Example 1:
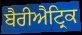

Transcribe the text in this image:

ਬੈਰੀਐਟ੍ਰਿਕ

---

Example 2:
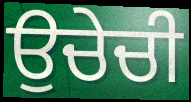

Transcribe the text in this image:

ਉਚੇਚੀ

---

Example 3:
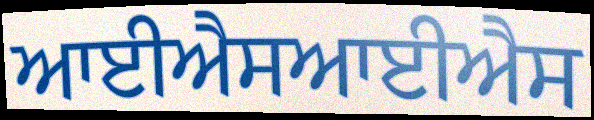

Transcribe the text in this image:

ਆਈਐਸਆਈਐਸ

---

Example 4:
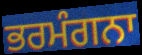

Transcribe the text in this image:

ਭਰਮੰਗਨਾ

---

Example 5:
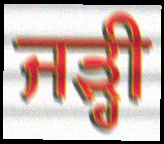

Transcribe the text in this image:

ਜੜ੍ਹੀ